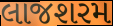
લાજશરમ